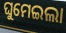
ଘୁମେଇଲା